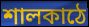
শালকাঠে